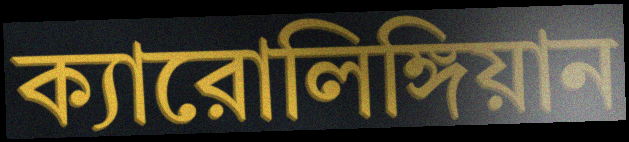
ক্যারোলিঙ্গিয়ান